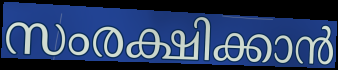
സംരക്ഷിക്കാൻ